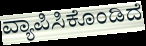
ವ್ಯಾಪಿಸಿಕೊಂಡಿದೆ